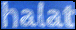
halat